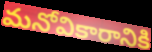
మనోవికారానికి